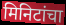
मिनिटांचा